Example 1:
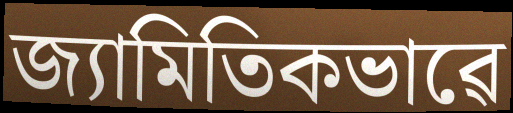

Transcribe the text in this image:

জ্যামিতিকভাৱে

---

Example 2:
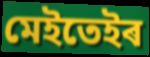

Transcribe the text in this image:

মেইতেইৰ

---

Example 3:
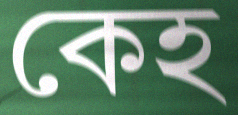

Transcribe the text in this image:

কেহ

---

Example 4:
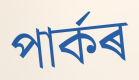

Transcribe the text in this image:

পাৰ্কৰ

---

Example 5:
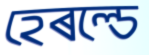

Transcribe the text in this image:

হেৰল্ডে